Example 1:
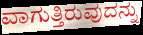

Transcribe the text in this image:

ವಾಗುತ್ತಿರುವುದನ್ನು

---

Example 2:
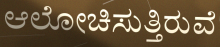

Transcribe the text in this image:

ಆಲೋಚಿಸುತ್ತಿರುವೆ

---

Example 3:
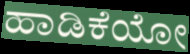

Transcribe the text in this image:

ಹಾಡಿಕೆಯೋ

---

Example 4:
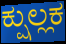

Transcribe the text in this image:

ಕ್ಷುಲ್ಲಕ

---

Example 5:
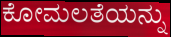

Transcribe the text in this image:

ಕೋಮಲತೆಯನ್ನು